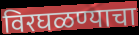
विरघळण्याचा